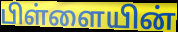
பிள்ளையின்